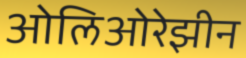
ओलिओरेझीन